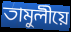
তামুলীয়ে